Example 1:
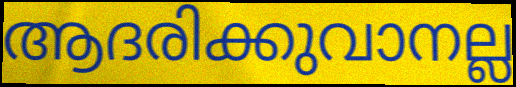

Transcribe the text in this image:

ആദരിക്കുവാനല്ല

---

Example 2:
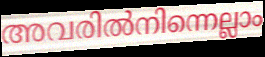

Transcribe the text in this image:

അവരിൽനിന്നെല്ലാം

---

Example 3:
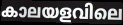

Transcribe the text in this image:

കാലയളവിലെ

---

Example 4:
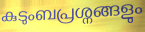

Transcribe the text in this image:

കുടുംബപ്രശ്നങ്ങളും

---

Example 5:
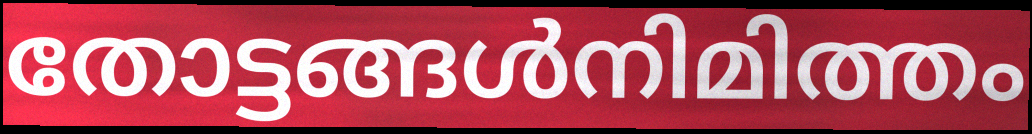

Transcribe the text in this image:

തോട്ടങ്ങൾനിമിത്തം